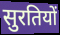
सुरतियों